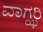
ವಾಗ್ಝರಿ